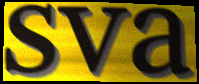
sva